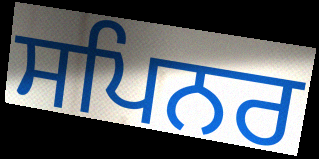
ਸਪਿਨਰ